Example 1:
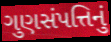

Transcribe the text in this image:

ગુણસંપત્તિનું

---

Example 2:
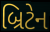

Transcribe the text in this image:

બ્રિટેન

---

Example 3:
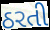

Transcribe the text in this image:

ઠરતી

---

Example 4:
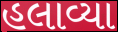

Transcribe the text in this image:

હલાવ્યા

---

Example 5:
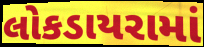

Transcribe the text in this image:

લોકડાયરામાં